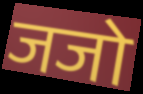
जजो